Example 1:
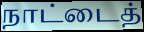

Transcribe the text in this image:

நாட்டைத்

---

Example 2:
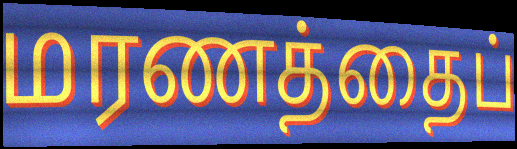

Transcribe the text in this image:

மரணத்தைப்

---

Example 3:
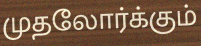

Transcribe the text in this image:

முதலோர்க்கும்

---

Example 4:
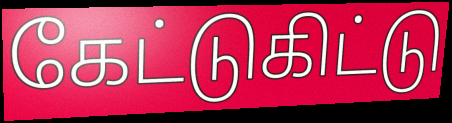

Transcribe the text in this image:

கேட்டுகிட்டு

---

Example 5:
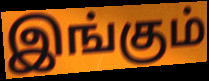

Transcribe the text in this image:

இங்கும்